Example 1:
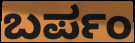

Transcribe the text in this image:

ಬರ್ಪಂ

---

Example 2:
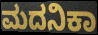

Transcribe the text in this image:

ಮದನಿಕಾ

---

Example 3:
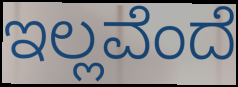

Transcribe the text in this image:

ಇಲ್ಲವೆಂದೆ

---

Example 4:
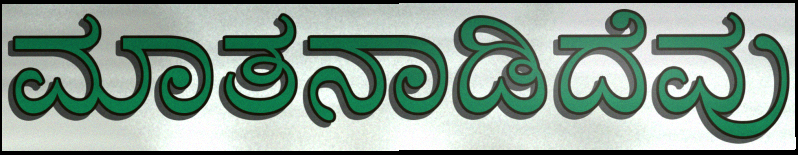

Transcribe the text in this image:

ಮಾತನಾಡಿದೆವು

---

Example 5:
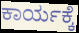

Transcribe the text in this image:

ಕಾರ್ಯಕ್ಕೆ